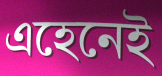
এহেনেই